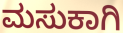
ಮಸುಕಾಗಿ